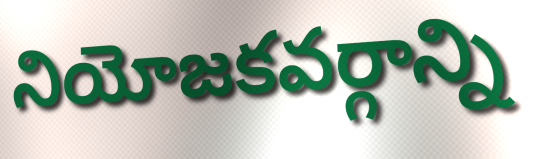
నియోజకవర్గాన్ని